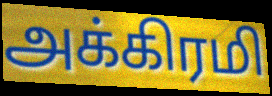
அக்கிரமி